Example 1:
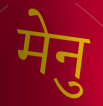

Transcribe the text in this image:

मेनु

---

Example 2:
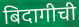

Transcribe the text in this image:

बिदागीची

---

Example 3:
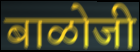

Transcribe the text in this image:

बाळोजी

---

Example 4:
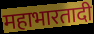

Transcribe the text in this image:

महाभारतादी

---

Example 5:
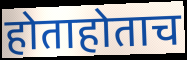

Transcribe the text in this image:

होताहोताच